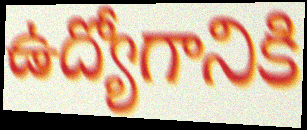
ఉద్యోగానికి